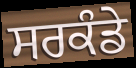
ਸਰਕੰਡੇ